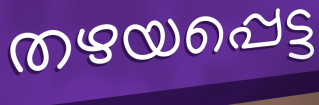
തഴയപ്പെട്ട